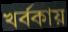
খর্বকায়